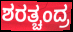
ಶರತ್ಚಂದ್ರ